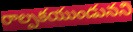
రాల్పకయుండునని